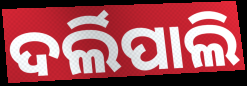
ଦର୍ଲିପାଲି